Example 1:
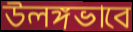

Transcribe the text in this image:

উলঙ্গভাবে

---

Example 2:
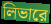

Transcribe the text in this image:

লিভারে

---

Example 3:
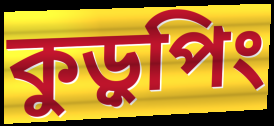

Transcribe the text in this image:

কুড়ুপিং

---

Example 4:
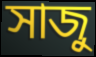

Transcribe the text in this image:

সাজু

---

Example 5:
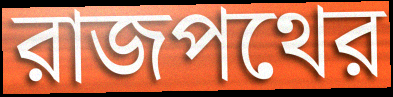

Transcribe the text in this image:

রাজপথের